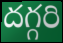
దగ్గరి